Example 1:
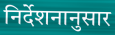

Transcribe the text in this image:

निर्देशनानुसार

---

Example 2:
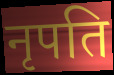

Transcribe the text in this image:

नृपति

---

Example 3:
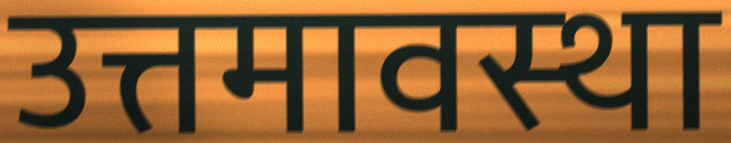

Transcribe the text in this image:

उत्तमावस्था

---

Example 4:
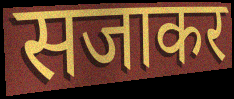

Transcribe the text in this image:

सजाकर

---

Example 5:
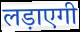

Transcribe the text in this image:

लड़ाएगी